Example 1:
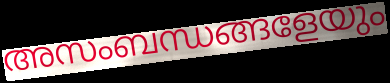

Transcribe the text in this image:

അസംബന്ധങ്ങളേയും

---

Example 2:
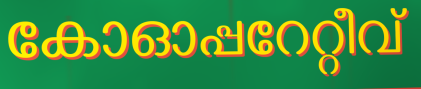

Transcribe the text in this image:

കോഓപ്പറേറ്റീവ്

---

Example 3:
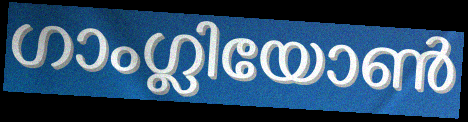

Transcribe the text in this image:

ഗാംഗ്ലിയോൺ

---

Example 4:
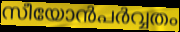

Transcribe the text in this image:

സീയോൻപർവ്വതം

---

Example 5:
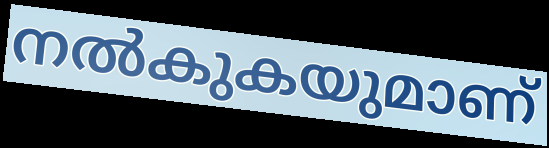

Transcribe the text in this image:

നൽകുകയുമാണ്